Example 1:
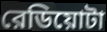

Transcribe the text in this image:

রেডিয়োটা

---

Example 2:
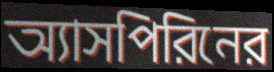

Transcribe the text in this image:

অ্যাসপিরিনের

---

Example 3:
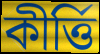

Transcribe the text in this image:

কীর্ত্তি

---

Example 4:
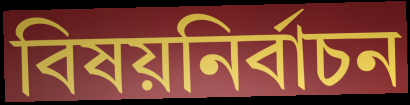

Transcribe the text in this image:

বিষয়নির্বাচন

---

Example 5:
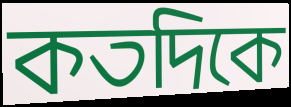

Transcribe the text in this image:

কতদিকে